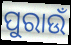
ପୁରାଉଁ